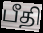
பீதி